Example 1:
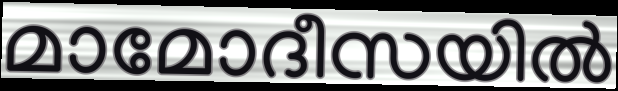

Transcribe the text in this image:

മാമോദീസയിൽ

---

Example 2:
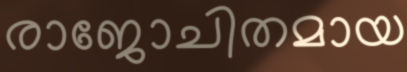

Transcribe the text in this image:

രാജോചിതമായ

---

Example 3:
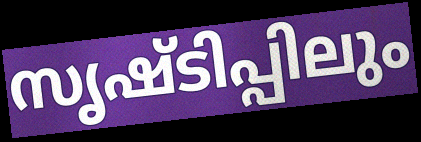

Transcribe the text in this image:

സൃഷ്ടിപ്പിലും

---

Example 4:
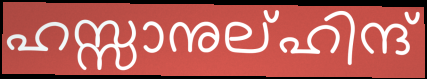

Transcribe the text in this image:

ഹസ്സാനുല്ഹിന്ദ്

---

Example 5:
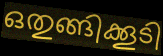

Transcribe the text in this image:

ഒതുങ്ങിക്കൂടി